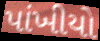
પાંખીયો